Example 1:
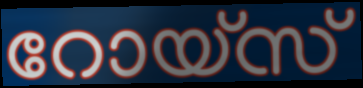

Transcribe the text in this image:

റോയ്സ്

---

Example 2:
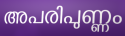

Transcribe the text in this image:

അപരിപുണ്ണം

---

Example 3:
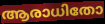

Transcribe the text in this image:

ആരാധിതോ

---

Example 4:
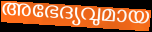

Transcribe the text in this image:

അഭേദ്യവുമായ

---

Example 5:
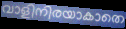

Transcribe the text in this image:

വാളിനിരയാകാതെ